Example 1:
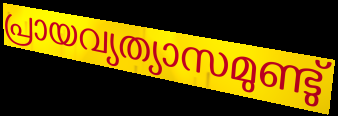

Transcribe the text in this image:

പ്രായവ്യത്യാസമുണ്ടു്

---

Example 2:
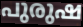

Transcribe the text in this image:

പുരുഷ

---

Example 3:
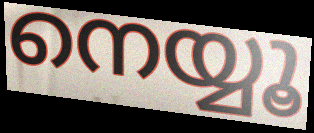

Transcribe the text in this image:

നെയ്യൂ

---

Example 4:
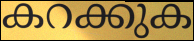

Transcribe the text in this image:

കറക്കുക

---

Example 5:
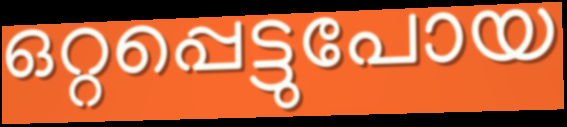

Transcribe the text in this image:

ഒറ്റപ്പെട്ടുപോയ